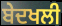
ਬੇਦਖਲੀ